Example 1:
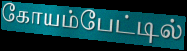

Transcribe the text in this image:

கோயம்பேட்டில்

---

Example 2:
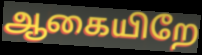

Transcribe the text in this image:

ஆகையிறே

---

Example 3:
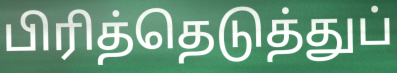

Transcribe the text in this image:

பிரித்தெடுத்துப்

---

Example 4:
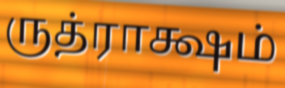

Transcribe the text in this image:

ருத்ராக்ஷம்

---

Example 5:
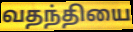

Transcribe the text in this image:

வதந்தியை